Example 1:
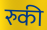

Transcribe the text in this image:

रुकी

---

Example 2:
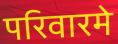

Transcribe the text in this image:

परिवारमे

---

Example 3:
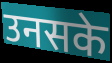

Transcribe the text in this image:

उनसके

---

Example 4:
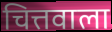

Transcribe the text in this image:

चित्तवाला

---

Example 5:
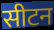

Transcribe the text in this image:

सीटन